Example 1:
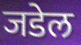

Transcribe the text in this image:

जडेल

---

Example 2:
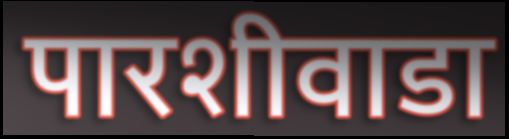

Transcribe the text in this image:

पारशीवाडा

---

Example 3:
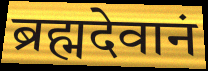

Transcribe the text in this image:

ब्रह्मदेवानं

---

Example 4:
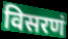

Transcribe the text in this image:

विसरणं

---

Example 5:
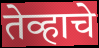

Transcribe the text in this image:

तेव्हाचे